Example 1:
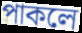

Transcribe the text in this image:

পাকলে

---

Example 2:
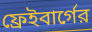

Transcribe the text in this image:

ফ্রেইবার্গের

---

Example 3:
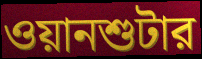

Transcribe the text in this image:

ওয়ানশুটার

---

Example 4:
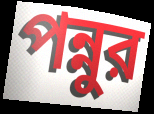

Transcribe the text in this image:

পন্নুর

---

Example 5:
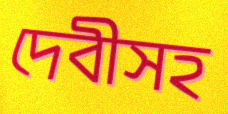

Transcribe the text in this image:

দেবীসহ